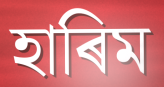
হাৰিম